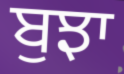
ਬੁਝਾ